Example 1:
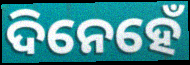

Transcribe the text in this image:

ଦିନେହେଁ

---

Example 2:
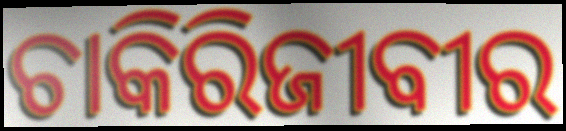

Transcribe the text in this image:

ଚାକିରିଜୀବୀର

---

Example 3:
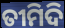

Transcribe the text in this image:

ତୀମିଦି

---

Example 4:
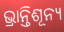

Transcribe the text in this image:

ଭ୍ରାନ୍ତିଶୂନ୍ୟ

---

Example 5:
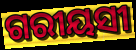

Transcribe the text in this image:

ଗରୀୟସୀ